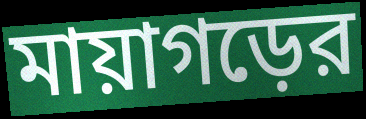
মায়াগড়ের